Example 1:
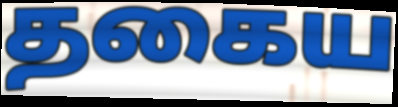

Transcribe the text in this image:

தகைய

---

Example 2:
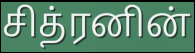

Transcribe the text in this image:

சித்ரனின்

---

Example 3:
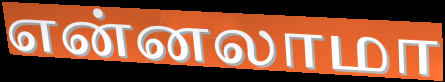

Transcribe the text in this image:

என்னலாமா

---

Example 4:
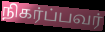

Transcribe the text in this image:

நிகர்ப்பவர்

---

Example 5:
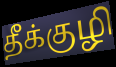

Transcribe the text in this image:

தீக்குழி